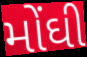
મોંઘી